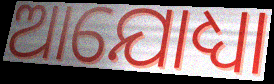
ଆଯୋଧ୍ୟା